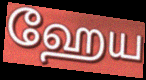
ஹேய